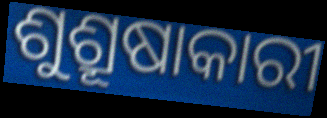
ଶୁଶ୍ରୂଷାକାରୀ